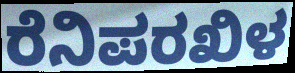
ರೆನಿಪರಖಿಳ